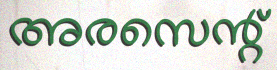
അരസെന്റ്